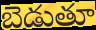
బెడుతూ